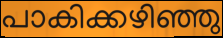
പാകിക്കഴിഞ്ഞു